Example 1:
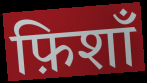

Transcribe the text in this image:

फ़िशाँ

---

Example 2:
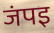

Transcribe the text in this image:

जंपइ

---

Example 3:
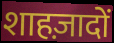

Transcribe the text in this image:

शाहज़ादों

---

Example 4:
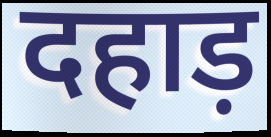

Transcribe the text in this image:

दहाड़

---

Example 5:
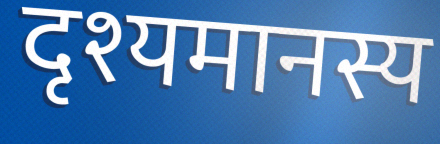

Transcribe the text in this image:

दृश्यमानस्य